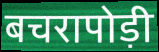
बचरापोड़ी